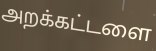
அறக்கட்டளை